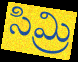
సిమ్రి